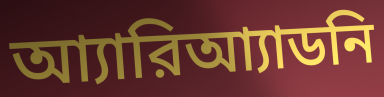
আ্যারিআ্যাডনি